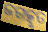
ଜଗତ୍କୃତ